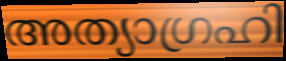
അത്യാഗ്രഹി